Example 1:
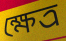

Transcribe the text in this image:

ক্ষেত্র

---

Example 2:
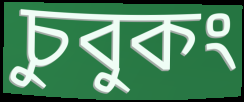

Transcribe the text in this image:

চুবুকং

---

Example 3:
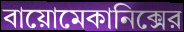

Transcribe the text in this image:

বায়োমেকানিক্সের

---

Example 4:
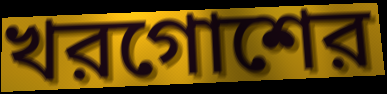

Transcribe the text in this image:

খরগোশের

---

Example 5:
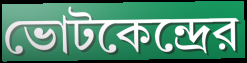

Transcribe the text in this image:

ভোটকেন্দ্রের